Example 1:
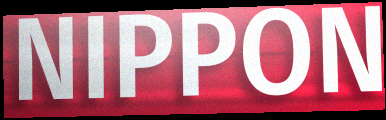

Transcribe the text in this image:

NIPPON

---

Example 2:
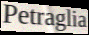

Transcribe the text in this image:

Petraglia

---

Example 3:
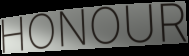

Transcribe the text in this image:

HONOUR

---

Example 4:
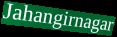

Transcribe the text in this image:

Jahangirnagar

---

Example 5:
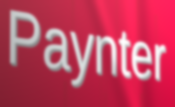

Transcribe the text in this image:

Paynter